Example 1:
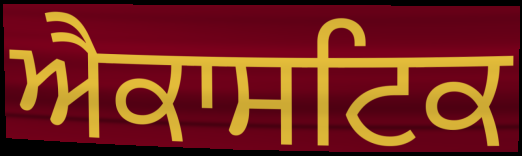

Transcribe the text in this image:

ਐਕਾਸਟਿਕ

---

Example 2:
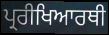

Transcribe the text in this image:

ਪ੍ਰਰੀਖਿਆਰਥੀ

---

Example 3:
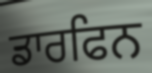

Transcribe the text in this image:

ਡਾਰਫਿਨ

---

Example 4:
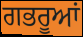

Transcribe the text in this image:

ਗਭਰੂਆਂ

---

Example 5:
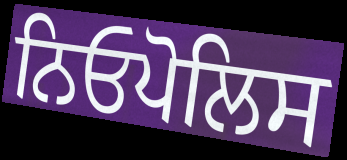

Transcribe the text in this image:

ਨਿਓਪੋਲਿਸ